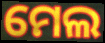
ମେଲ